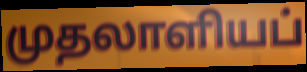
முதலாளியப்